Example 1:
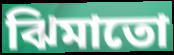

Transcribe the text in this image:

ঝিমাতো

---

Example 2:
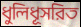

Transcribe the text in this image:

ধুলিধূসরিত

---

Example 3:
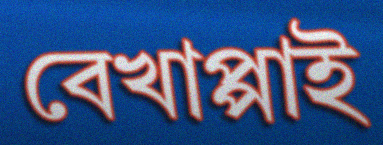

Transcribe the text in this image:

বেখাপ্পাই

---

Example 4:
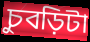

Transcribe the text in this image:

চুবড়িটা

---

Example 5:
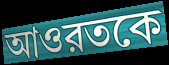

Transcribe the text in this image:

আওরতকে